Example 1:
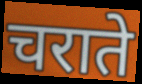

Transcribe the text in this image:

चराते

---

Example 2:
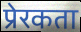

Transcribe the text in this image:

प्रेरकता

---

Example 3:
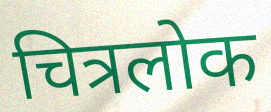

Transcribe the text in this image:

चित्रलोक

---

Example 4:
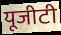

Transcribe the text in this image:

यूजीटी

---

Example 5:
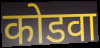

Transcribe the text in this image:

कोडवा